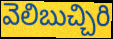
వెలిబుచ్చిరి